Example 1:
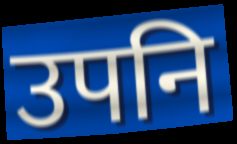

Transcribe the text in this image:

उपनि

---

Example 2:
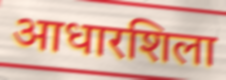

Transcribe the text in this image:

आधारशिला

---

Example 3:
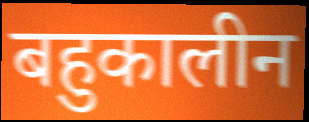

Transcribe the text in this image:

बहुकालीन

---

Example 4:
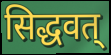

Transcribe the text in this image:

सिद्धवत्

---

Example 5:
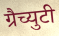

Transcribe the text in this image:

ग्रैच्युटी